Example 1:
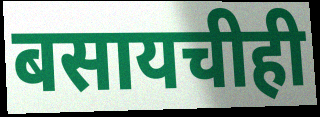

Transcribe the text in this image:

बसायचीही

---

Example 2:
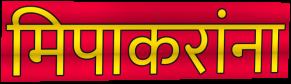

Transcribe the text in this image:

मिपाकरांना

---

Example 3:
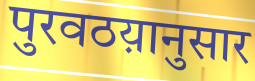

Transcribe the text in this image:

पुरवठय़ानुसार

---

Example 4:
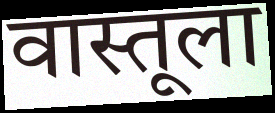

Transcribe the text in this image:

वास्तूला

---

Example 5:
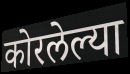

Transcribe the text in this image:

कोरलेल्या